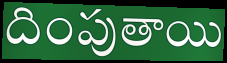
దింపుతాయి